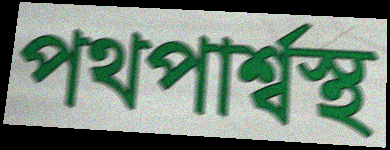
পথপার্শ্বস্থ